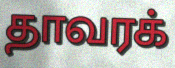
தாவரக்